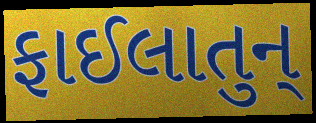
ફાઈલાતુન્